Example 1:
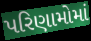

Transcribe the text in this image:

પરિણામોમાં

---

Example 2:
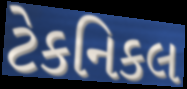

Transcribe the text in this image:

ટેકનિકલ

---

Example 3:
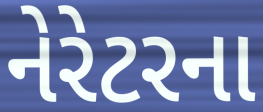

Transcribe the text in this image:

નેરેટરના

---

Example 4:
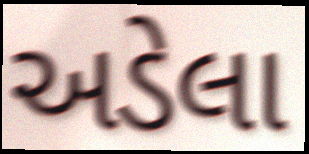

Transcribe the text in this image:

અડેલા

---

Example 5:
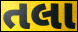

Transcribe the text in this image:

તલા